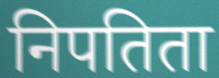
निपतिता